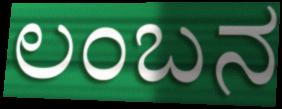
ಲಂಬನ